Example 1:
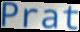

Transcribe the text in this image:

Prat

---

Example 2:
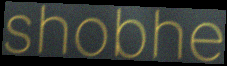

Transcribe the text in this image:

shobhe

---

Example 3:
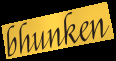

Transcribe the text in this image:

bhunken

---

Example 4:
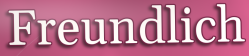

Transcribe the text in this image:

Freundlich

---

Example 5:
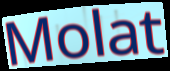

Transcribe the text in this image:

Molat